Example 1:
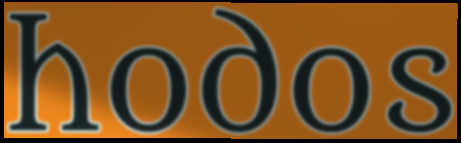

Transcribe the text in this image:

hodos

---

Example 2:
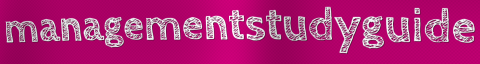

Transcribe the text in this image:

managementstudyguide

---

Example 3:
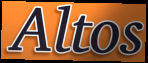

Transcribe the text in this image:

Altos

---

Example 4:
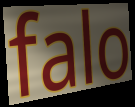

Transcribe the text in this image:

falo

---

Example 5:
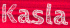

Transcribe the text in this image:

Kasla